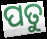
ପତୁ